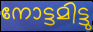
നോട്ടമിട്ടു